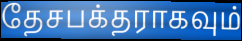
தேசபக்தராகவும்